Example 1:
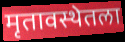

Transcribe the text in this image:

मृतावस्थेतला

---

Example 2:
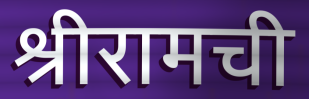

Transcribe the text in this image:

श्रीरामची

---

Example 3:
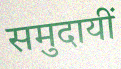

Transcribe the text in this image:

समुदायीं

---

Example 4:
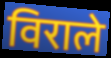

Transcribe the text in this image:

विराले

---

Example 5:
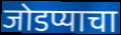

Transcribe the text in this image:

जोडप्याचा